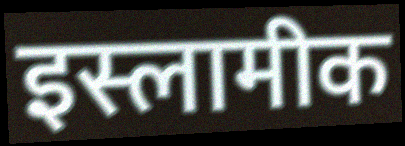
इस्लामीक